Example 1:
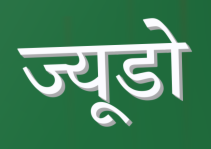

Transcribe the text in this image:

ज्यूडो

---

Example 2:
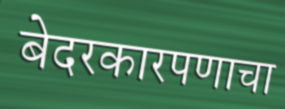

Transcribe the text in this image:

बेदरकारपणाचा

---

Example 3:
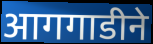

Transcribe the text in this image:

आगगाडीने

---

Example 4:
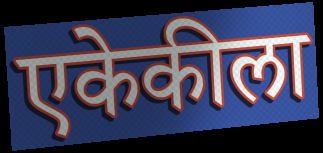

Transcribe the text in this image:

एकेकीला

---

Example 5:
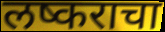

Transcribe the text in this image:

लष्कराचा